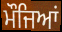
ਮੌਜਿਆਂ